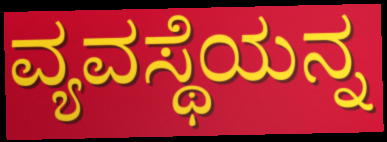
ವ್ಯವಸ್ಥೆಯನ್ನ